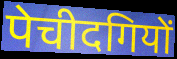
पेचीदगियों